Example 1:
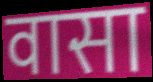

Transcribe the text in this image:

वासा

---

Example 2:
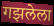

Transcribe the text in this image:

गझलेला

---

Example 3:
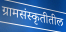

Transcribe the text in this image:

ग्रामसंस्कृतीतील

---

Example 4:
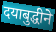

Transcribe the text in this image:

दयाबुद्धीने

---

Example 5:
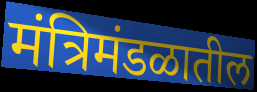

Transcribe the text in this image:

मंत्रिमंडळातील